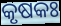
କୃଷକଃ